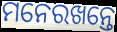
ମନେରଖନ୍ତେ